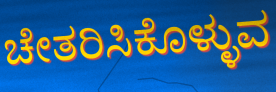
ಚೇತರಿಸಿಕೊಳ್ಳುವ